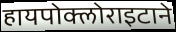
हायपोक्लोराइटाने